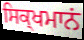
ਸਿਕ੍ਖਮਾਨਂ